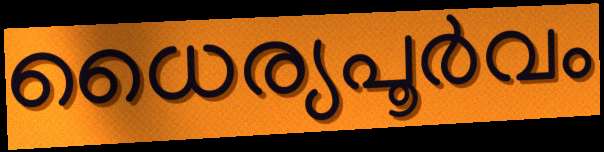
ധൈര്യപൂർവം